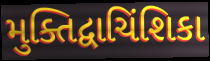
મુક્તિદ્વાચિંશિકા